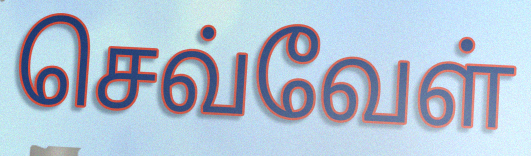
செவ்வேள்